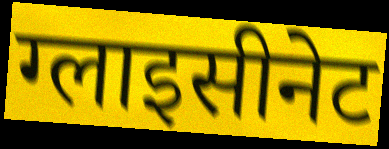
ग्लाइसीनेट